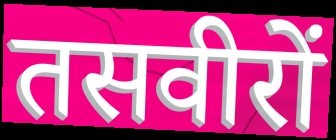
तसवीरों